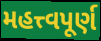
મહત્ત્વપૂર્ણ